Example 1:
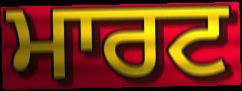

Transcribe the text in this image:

ਮਾਰਟ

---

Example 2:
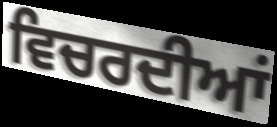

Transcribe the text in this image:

ਵਿਚਰਦੀਆਂ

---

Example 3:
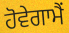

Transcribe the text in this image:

ਹੋਵੇਗਾਮੈਂ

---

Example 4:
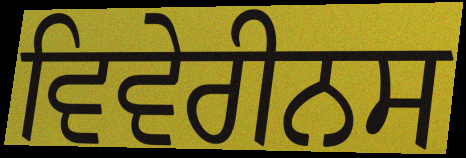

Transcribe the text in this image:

ਵਿਵੇਰੀਨਸ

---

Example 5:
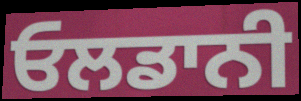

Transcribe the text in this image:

ਓਲਡਾਨੀ